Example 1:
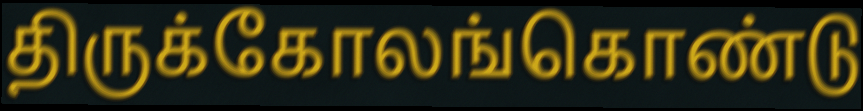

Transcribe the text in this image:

திருக்கோலங்கொண்டு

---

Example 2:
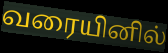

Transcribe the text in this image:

வரையினில்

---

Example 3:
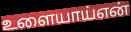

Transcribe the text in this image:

உளையாய்என்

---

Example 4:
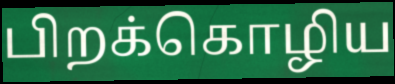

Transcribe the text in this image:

பிறக்கொழிய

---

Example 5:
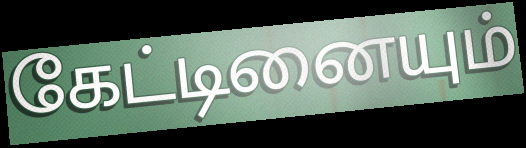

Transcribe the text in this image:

கேட்டினையும்